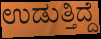
ಉಡುತ್ತಿದ್ದೆ